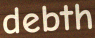
debth